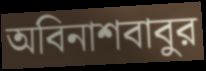
অবিনাশবাবুর